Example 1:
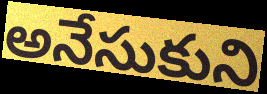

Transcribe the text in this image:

అనేసుకుని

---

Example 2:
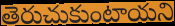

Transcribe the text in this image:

తెరుచుకుంటాయని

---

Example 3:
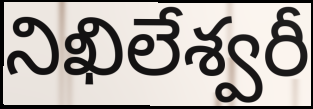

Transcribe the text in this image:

నిఖిలేశ్వరీ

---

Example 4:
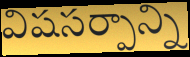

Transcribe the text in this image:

విషసర్పాన్ని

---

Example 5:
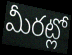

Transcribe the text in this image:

మీరట్లో